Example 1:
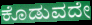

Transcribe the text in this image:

ಕೊಡುವದೇ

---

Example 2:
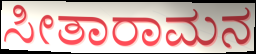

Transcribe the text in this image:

ಸೀತಾರಾಮನ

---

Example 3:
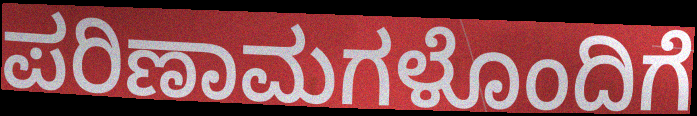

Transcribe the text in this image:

ಪರಿಣಾಮಗಳೊಂದಿಗೆ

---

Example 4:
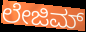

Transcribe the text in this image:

ಲೇಜಿಮ್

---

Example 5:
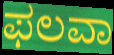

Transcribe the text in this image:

ಫಲವಾ